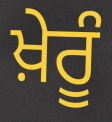
ਖ਼ੇਰੂੰ